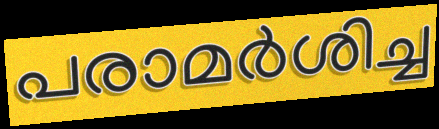
പരാമർശിച്ച